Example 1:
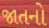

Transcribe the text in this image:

જાતનો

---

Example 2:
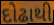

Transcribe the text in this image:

દોઢાથી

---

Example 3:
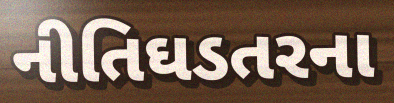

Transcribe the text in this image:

નીતિઘડતરના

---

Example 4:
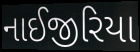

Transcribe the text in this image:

નાઈજીરિયા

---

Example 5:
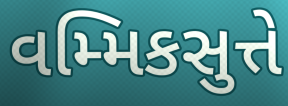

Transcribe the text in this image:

વમ્મિકસુત્તે